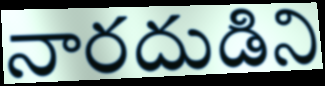
నారదుడిని